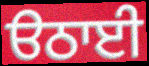
ੳਠਾਈ